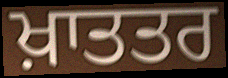
ਖ਼ਾਤਤਰ